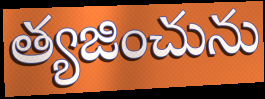
త్యజించును